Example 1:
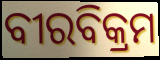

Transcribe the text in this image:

ବୀରବିକ୍ରମ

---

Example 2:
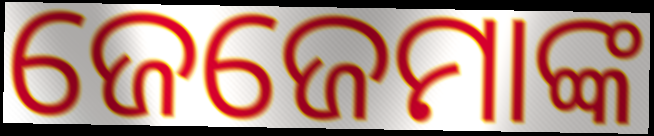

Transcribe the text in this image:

ଜେଜେମାଙ୍କ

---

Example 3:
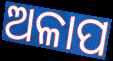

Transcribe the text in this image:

ଅଳାପ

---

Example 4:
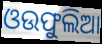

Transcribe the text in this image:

ଓଉଫୁଲିଆ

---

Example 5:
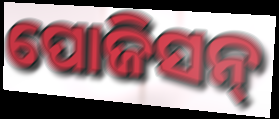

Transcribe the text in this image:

ପୋଜିସନ୍